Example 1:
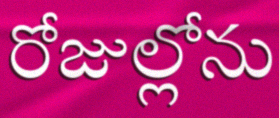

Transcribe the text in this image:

రోజుల్లోను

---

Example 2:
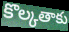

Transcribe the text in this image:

కొల్కతాకు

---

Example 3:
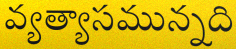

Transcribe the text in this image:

వ్యత్యాసమున్నది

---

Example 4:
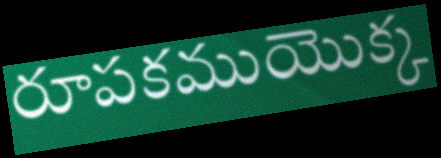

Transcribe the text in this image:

రూపకముయొక్క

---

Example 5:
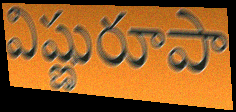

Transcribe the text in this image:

విష్ణురూపా